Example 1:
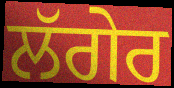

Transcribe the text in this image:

ਲੱਗੇਰ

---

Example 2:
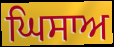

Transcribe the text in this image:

ਘਿਸਾਅ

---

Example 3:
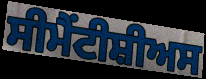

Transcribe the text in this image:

ਸੀਮੈਂਟੀਸ਼ੀਅਸ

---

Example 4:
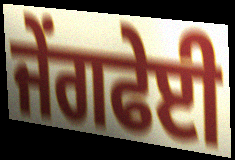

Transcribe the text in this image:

ਜੇਂਗਫੇਈ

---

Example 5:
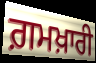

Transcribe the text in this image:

ਗ਼ਮਖ਼ਾਰੀ